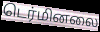
டெர்மினலை